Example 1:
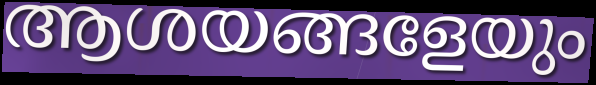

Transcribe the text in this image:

ആശയങ്ങളേയും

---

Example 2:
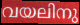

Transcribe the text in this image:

വയലിനു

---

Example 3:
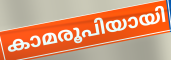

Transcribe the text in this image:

കാമരൂപിയായി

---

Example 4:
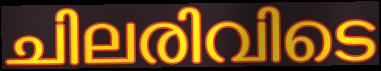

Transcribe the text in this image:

ചിലരിവിടെ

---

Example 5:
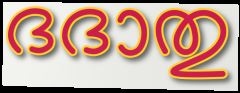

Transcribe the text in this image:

ദദാതു